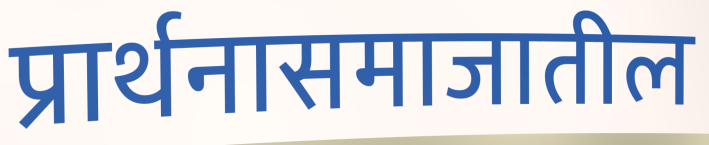
प्रार्थनासमाजातील